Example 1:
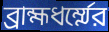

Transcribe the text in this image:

ব্রাহ্মধর্ম্মের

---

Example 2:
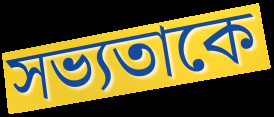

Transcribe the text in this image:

সভ্যতাকে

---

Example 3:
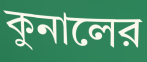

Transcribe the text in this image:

কুনালের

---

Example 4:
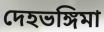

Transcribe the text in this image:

দেহভঙ্গিমা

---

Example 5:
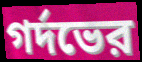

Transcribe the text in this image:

গর্দভের